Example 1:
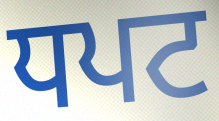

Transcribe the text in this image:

ਧਪਟ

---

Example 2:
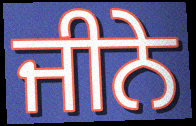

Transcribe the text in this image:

ਜੀਨੇ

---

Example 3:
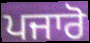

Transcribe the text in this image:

ਪਜਾਰੋ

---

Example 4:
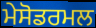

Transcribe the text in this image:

ਮੇਸੋਡਰਮਲ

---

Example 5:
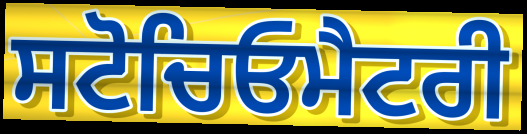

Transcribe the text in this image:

ਸਟੋਚਿਓਮੈਟਰੀ